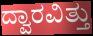
ದ್ವಾರವಿತ್ತು